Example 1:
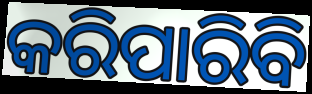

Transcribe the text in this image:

କରିପାରିବି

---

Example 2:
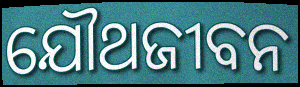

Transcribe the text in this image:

ଯୌଥଜୀବନ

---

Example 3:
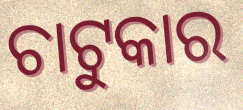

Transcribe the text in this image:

ଚାଟୁକାର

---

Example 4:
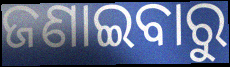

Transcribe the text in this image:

ଜଣାଇବାରୁ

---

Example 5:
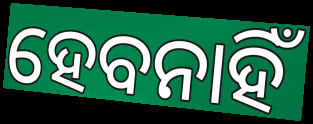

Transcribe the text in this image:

ହେବନାହିଁ